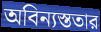
অবিন্যস্ততার